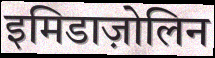
इमिडाज़ोलिन